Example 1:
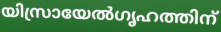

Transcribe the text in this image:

യിസ്രായേൽഗൃഹത്തിന്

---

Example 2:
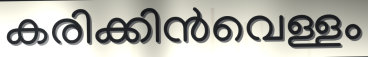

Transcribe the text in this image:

കരിക്കിൻവെള്ളം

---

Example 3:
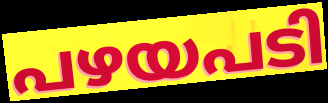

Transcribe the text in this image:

പഴയപടി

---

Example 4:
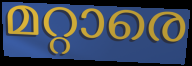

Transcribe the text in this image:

മറ്റാരെ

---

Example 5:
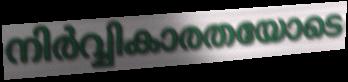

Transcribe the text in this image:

നിർവ്വികാരതയോടെ